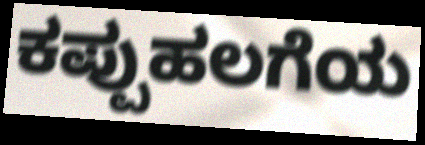
ಕಪ್ಪುಹಲಗೆಯ